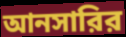
আনসারির